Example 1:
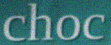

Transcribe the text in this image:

choc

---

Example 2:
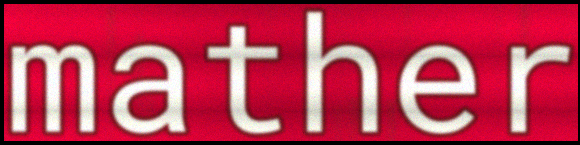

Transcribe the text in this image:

mather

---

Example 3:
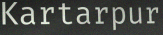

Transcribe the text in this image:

Kartarpur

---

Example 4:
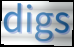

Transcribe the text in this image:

digs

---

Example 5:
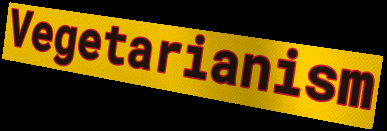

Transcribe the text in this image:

Vegetarianism